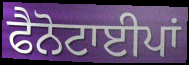
ਫੈਨੋਟਾਈਪਾਂ